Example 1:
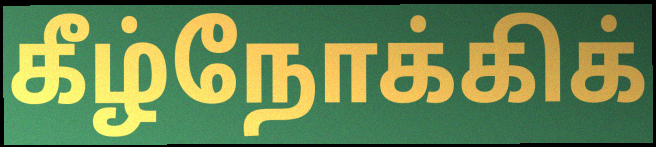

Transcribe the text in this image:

கீழ்நோக்கிக்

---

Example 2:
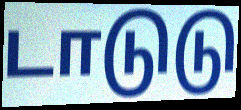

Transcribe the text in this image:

டாடுடு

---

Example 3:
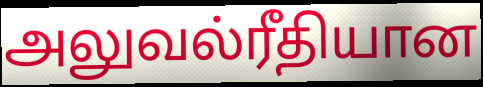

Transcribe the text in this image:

அலுவல்ரீதியான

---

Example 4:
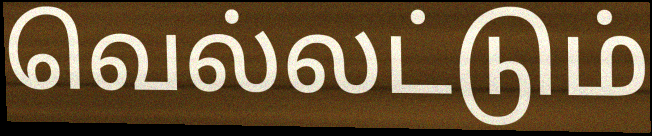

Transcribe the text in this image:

வெல்லட்டும்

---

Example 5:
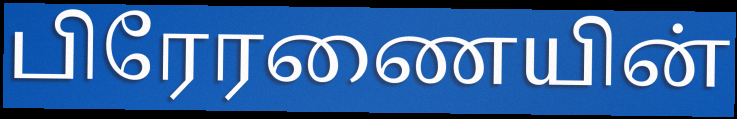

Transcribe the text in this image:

பிரேரணையின்